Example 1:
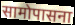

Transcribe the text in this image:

सामोपासना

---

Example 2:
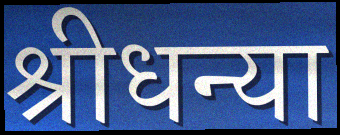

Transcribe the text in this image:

श्रीधन्या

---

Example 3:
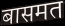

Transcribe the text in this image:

बासमत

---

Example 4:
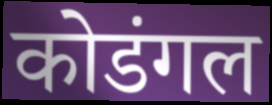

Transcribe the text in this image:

कोडंगल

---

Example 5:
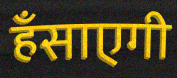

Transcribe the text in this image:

हँसाएगी